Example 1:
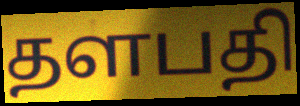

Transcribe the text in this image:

தளபதி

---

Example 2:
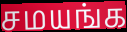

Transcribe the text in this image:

சமயங்க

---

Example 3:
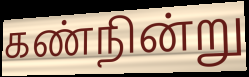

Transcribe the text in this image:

கண்நின்று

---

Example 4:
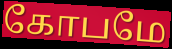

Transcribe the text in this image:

கோபமே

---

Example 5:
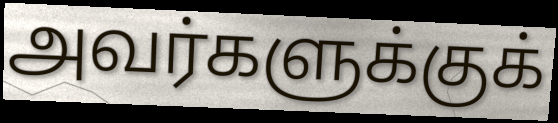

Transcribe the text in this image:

அவர்களுக்குக்